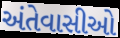
અંતેવાસીઓ